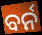
ବର୍ନ